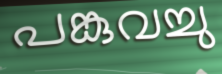
പങ്കുവച്ചു